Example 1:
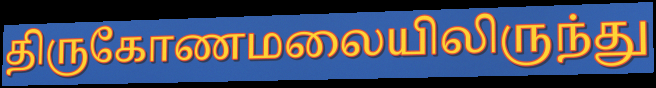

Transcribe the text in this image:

திருகோணமலையிலிருந்து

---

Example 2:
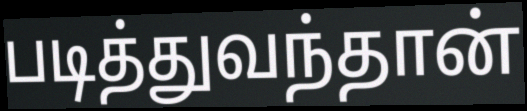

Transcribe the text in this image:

படித்துவந்தான்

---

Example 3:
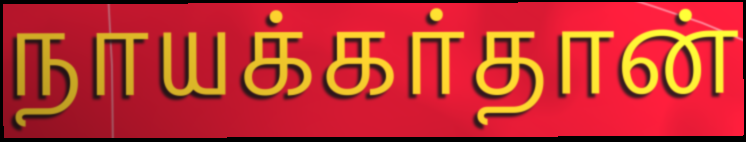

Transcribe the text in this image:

நாயக்கர்தான்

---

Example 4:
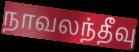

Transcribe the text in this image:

நாவலந்தீவு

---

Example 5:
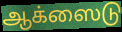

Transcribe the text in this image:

ஆக்ஸைடு